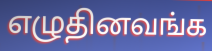
எழுதினவங்க